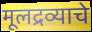
मूलद्रव्याचे